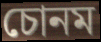
চোনম